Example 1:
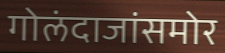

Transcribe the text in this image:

गोलंदाजांसमोर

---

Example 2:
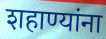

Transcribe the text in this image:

शहाण्यांना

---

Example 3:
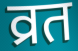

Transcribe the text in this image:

व्रत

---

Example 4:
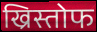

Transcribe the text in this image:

ख्रिस्तोफ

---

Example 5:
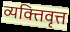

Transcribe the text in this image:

व्यक्तिवृत्त